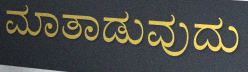
ಮಾತಾಡುವುದು